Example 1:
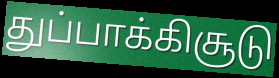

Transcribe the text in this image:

துப்பாக்கிசூடு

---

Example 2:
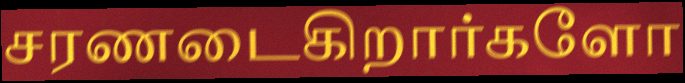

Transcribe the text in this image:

சரணடைகிறார்களோ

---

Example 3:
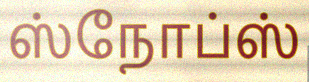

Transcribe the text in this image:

ஸ்நோப்ஸ்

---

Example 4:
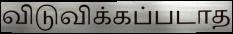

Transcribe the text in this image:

விடுவிக்கப்படாத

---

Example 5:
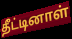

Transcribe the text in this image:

தீட்டினாள்